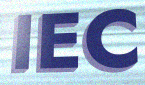
IEC